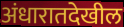
अंधारातदेखील